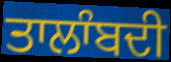
ਤਾਲਾੰਬਦੀ